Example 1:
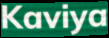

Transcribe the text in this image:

Kaviya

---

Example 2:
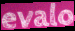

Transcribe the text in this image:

evalo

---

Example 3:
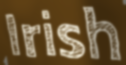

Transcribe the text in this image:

Irish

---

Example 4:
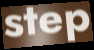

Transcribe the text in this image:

step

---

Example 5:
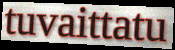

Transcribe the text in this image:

tuvaittatu